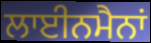
ਲਾਈਨਮੈਨਾਂ